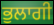
ਭੁਲਾਗੀ